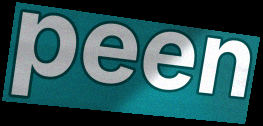
peen